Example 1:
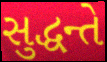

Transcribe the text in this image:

સુદ્ધન્તે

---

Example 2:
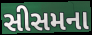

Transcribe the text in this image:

સીસમના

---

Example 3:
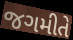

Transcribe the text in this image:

જગમીતે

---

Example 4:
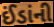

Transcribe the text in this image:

ઈંડાંની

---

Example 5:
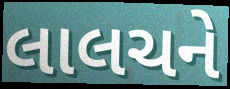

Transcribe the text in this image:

લાલચને